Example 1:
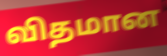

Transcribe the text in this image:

விதமான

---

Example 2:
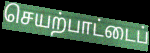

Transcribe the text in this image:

செயற்பாட்டைப்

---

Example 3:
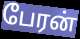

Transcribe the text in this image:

பேரன்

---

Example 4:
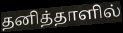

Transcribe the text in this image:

தனித்தாளில்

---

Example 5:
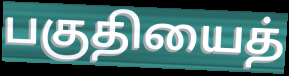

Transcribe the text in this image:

பகுதியைத்